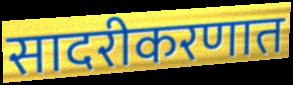
सादरीकरणात